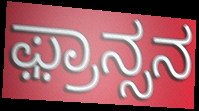
ಫ಼್ರಾನ್ಸನ